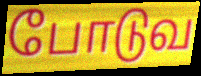
போடுவ